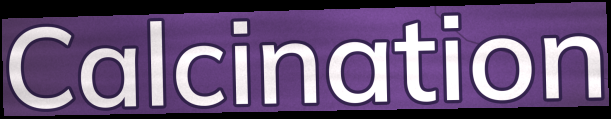
Calcination